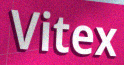
Vitex